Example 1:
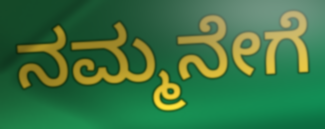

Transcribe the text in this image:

ನಮ್ಮನೇಗೆ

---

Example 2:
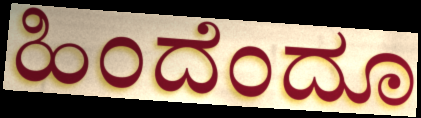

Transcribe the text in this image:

ಹಿಂದೆಂದೂ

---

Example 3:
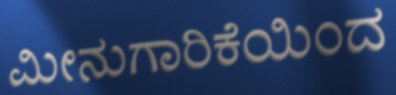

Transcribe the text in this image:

ಮೀನುಗಾರಿಕೆಯಿಂದ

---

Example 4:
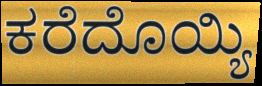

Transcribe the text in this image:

ಕರೆದೊಯ್ಯಿ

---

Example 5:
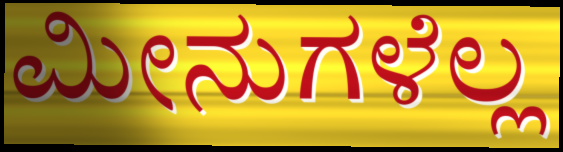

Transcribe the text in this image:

ಮೀನುಗಳೆಲ್ಲ